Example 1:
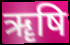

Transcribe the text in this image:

ॠषि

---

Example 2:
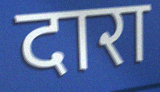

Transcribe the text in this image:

दारा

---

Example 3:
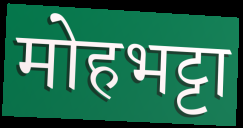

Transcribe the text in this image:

मोहभट्टा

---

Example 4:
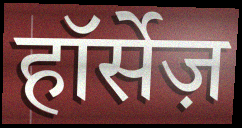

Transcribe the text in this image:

हॉर्सेज़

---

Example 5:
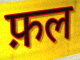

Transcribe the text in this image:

फ़ल